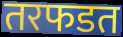
तरफडत